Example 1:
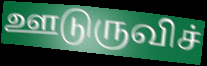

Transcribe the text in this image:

ஊடுருவிச்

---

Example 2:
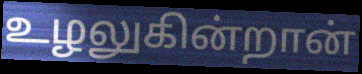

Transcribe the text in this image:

உழலுகின்றான்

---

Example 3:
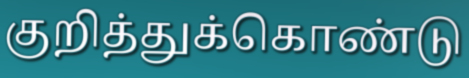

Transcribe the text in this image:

குறித்துக்கொண்டு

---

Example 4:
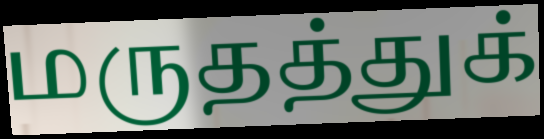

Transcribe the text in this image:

மருதத்துக்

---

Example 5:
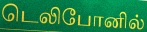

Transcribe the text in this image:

டெலிபோனில்